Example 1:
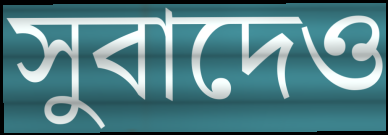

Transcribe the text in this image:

সুবাদেও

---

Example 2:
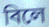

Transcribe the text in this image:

বিলে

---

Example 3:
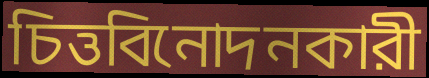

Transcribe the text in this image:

চিত্তবিনোদনকারী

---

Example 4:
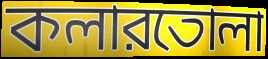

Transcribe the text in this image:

কলারতোলা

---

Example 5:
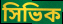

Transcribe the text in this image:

সিভিক